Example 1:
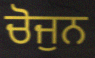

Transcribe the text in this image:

ਚੋਜੁਨ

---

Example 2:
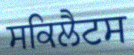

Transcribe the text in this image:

ਸਕਿਲੈਟਸ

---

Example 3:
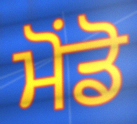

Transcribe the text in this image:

ਮੋਂਡੋ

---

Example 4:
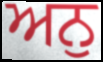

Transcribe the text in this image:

ਅਨੁ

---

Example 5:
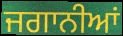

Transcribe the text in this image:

ਜਗਾਨੀਆਂ